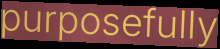
purposefully